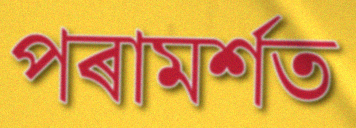
পৰামৰ্শত